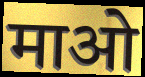
माओ